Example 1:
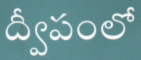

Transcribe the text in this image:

ద్వీపంలో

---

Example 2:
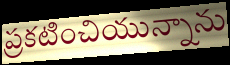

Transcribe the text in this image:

ప్రకటించియున్నాను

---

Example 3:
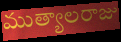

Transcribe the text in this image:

ముత్యాలరాజు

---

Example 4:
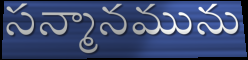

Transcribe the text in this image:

సన్మానమును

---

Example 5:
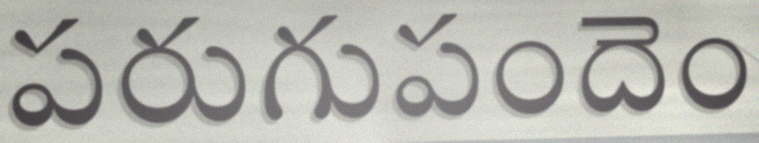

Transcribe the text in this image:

పరుగుపందెం